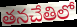
తనచేతిలో